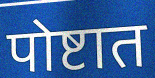
पोष्टात